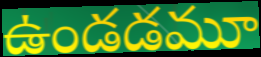
ఉండడమూ